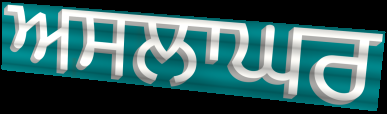
ਅਸਲਾਘਰ